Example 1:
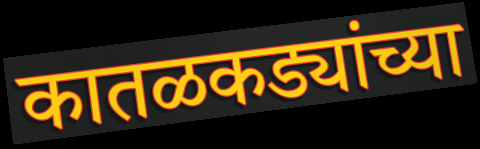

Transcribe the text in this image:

कातळकड्यांच्या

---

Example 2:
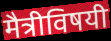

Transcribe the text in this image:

मैत्रीविषयी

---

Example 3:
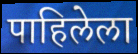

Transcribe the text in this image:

पाहिलेला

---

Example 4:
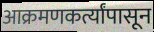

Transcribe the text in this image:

आक्रमणकर्त्यांपासून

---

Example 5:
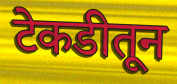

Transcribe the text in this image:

टेकडीतून